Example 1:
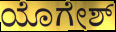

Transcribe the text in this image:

ಯೊಗೇಶ್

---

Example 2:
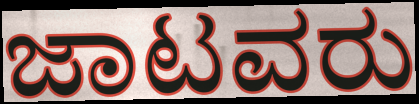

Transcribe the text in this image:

ಜಾಟವರು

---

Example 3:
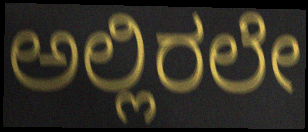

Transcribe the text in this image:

ಅಲ್ಲಿರಲೇ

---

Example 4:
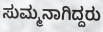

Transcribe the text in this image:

ಸುಮ್ಮನಾಗಿದ್ದರು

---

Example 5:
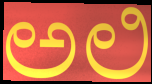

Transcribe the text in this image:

ಅಲಿ